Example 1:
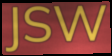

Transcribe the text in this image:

JSW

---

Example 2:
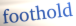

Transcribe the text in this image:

foothold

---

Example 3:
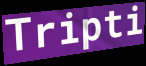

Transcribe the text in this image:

Tripti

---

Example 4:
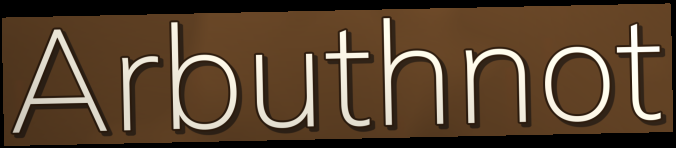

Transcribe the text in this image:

Arbuthnot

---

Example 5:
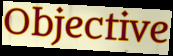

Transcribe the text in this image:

Objective